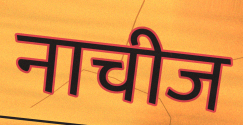
नाचीज